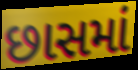
છાસમાં